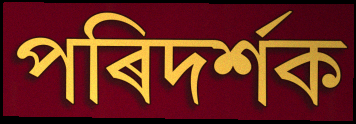
পৰিদৰ্শক